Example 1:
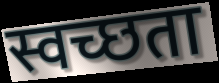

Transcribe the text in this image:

स्वच्छता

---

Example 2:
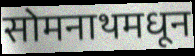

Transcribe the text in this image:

सोमनाथमधून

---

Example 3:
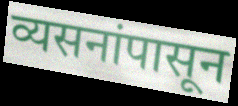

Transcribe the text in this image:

व्यसनांपासून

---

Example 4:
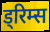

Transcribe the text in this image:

ड्रिम्स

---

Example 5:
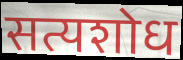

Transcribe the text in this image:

सत्यशोध